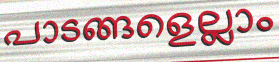
പാടങ്ങളെല്ലാം